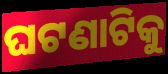
ଘଟଣାଟିକୁ